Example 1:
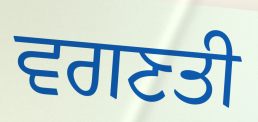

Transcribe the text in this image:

ਵਗਣਤੀ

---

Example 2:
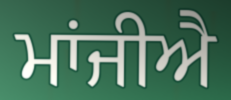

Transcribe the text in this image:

ਮਾਂਜੀਐ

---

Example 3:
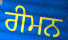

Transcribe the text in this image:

ਰੀਮਨ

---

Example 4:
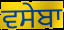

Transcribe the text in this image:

ਵਸੇਬਾ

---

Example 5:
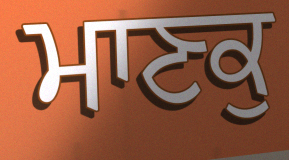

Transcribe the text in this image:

ਮਾਣਕੁ